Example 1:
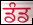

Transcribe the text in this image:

ਡੰਡ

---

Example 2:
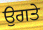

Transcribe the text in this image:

ਉਗਤੇ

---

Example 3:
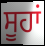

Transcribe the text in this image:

ਸੂਹਾਂ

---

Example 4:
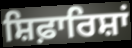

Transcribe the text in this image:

ਸ਼ਿਫ਼ਾਰਿਸ਼ਾਂ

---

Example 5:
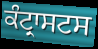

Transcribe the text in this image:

ਕੰਟ੍ਰਾਸਟਸ